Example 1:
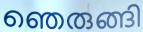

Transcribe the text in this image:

ഞെരുങ്ങി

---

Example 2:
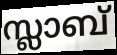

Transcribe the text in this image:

സ്ലാബ്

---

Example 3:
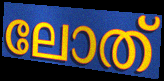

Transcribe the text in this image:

ലോത്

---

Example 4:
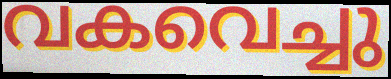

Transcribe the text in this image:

വകവെച്ചു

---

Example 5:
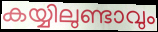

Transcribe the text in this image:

കയ്യിലുണ്ടാവും